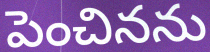
పెంచినను